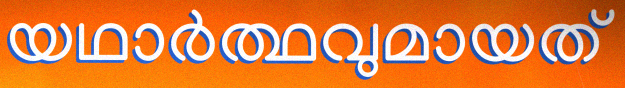
യഥാർത്ഥവുമായത്